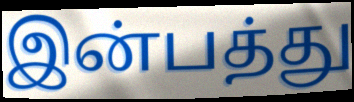
இன்பத்து